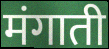
मंगाती